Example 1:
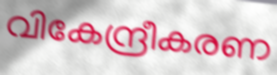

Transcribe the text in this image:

വികേന്ദ്രീകരണ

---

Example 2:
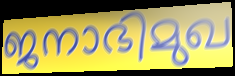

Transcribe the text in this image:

ജനാഭിമുഖ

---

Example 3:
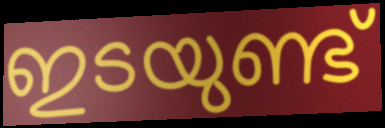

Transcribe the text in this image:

ഇടയുണ്ട്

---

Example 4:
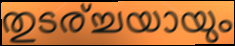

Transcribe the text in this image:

തുടര്ച്ചയായും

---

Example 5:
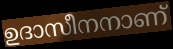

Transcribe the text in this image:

ഉദാസീനനാണ്